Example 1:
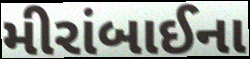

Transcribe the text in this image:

મીરાંબાઈના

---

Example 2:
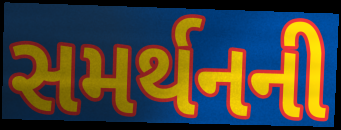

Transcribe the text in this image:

સમર્થનની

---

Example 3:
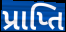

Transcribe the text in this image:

પ્રાપ્તિ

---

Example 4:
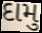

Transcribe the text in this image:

દામુ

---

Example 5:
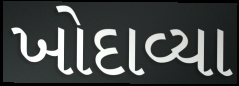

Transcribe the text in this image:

ખોદાવ્યા